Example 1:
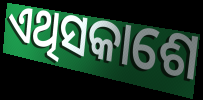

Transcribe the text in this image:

ଏଥିସକାଶେ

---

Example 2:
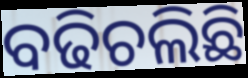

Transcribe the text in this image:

ବଢିଚଲିଛି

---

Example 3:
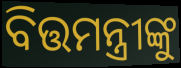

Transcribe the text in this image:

ବିତ୍ତମନ୍ତ୍ରୀଙ୍କୁ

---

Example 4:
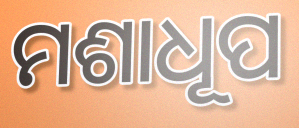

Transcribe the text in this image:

ମଶାଧୂପ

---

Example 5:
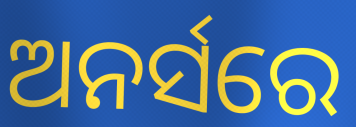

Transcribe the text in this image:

ଅନର୍ସରେ